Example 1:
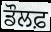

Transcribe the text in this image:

ਡੌਲਫ਼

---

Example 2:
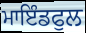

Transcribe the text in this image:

ਮਾਇੰਡਫੁਲ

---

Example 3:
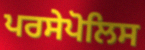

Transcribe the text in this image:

ਪਰਸੇਪੋਲਿਸ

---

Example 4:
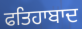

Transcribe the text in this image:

ਫਤਿਹਾਬਾਦ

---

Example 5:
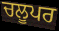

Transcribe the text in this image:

ਚਲੂਪਰ